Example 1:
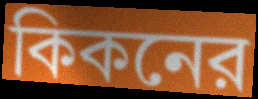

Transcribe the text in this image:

কিকনের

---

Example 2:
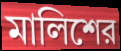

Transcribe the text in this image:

মালিশের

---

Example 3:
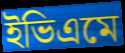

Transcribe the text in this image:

ইভিএমে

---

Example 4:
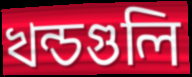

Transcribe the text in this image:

খন্ডগুলি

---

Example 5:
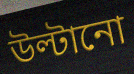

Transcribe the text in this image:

উল্টানো